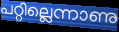
പറ്റില്ലെന്നാണു